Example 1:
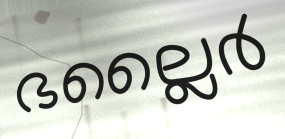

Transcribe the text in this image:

ഭല്ലൈർ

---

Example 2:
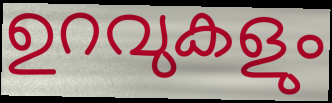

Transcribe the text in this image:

ഉറവുകളും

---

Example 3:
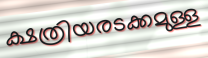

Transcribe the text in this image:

ക്ഷത്രിയരടക്കമുള്ള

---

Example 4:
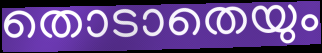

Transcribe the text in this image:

തൊടാതെയും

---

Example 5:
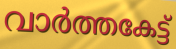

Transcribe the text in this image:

വാർത്തകേട്ട്